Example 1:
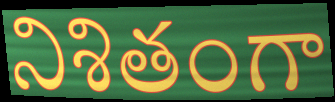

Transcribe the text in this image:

నిశితంగా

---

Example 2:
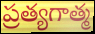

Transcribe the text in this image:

ప్రత్యగాత్మ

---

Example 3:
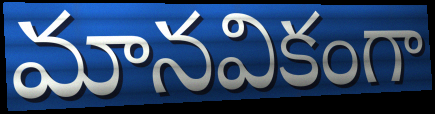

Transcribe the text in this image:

మానవికంగా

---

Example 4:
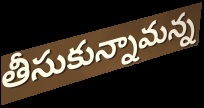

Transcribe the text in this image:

తీసుకున్నామన్న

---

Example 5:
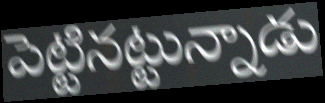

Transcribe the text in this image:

పెట్టినట్టున్నాడు